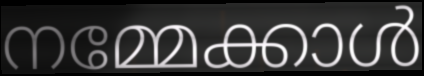
നമ്മേക്കാൾ